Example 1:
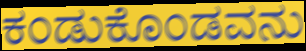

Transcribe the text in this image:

ಕಂಡುಕೊಂಡವನು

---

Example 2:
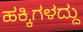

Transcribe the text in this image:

ಹಕ್ಕಿಗಳದ್ದು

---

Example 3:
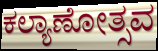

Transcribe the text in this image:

ಕಲ್ಯಾಣೋತ್ಸವ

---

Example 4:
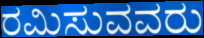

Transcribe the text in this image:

ರಮಿಸುವವರು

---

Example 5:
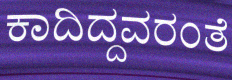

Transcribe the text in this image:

ಕಾದಿದ್ದವರಂತೆ